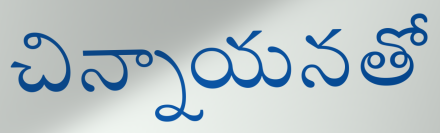
చిన్నాయనతో